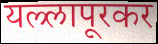
यल्लापूरकर